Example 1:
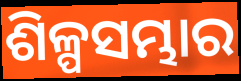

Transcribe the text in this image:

ଶିଳ୍ପସମ୍ଭାର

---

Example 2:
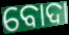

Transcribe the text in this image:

ବୋଦା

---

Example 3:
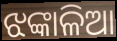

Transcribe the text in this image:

ଝଙ୍କାଳିଆ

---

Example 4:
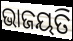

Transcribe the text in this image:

ଭାଜୟତି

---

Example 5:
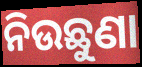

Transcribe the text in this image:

ନିଉଛୁଣା